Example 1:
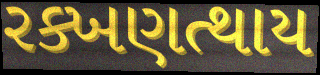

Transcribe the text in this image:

રક્ખણત્થાય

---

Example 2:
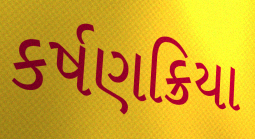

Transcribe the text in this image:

કર્ષણક્રિયા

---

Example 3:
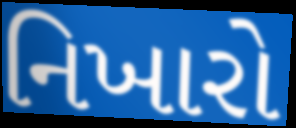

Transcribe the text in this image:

નિખારો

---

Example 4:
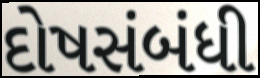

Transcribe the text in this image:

દોષસંબંધી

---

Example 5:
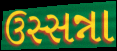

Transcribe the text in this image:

ઉસ્સન્ના